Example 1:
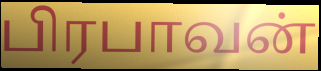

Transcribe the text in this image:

பிரபாவன்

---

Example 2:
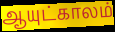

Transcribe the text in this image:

ஆயுட்காலம்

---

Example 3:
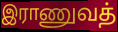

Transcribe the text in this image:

இராணுவத்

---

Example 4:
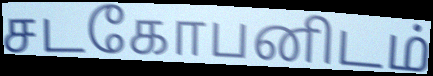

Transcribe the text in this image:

சடகோபனிடம்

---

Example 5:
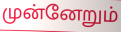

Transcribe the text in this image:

முன்னேறும்